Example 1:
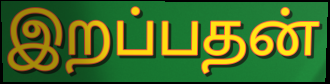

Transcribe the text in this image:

இறப்பதன்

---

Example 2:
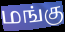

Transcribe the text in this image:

மங்கு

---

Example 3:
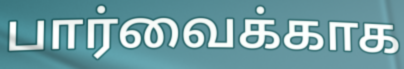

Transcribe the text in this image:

பார்வைக்காக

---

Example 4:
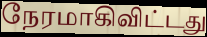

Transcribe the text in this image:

நேரமாகிவிட்டது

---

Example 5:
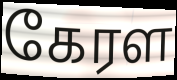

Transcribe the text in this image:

கேரள